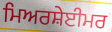
ਮਿਅਰਸ਼ੇਈਮਰ